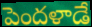
పెందళాడే